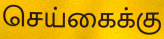
செய்கைக்கு